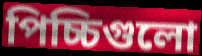
পিচ্চিগুলো